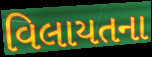
વિલાયતના